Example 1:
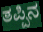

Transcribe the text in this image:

ತಪ್ಪಿನ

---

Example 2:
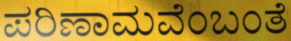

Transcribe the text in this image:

ಪರಿಣಾಮವೆಂಬಂತೆ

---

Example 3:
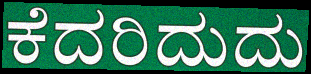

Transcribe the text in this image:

ಕೆದರಿದುದು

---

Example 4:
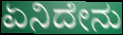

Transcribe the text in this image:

ಏನಿದೇನು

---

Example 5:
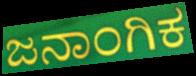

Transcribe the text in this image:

ಜನಾಂಗಿಕ